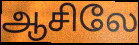
ஆசிலே